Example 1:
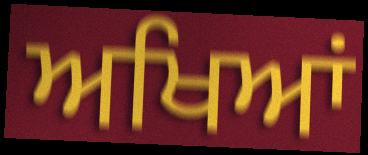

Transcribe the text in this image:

ਅਖਿਆਂ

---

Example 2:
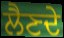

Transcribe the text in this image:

ਲੈਣਦੇ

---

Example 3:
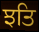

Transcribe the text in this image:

ਝਤਿ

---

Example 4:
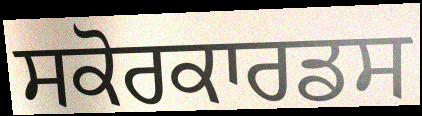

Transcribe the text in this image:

ਸਕੋਰਕਾਰਡਸ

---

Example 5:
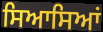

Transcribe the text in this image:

ਸਿਆਸਿਆਂ